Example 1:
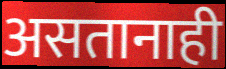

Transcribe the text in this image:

असतानाही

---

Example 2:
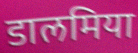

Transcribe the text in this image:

डालमिया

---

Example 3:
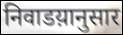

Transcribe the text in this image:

निवाडय़ानुसार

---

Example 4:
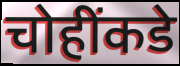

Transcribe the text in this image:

चोहींकडे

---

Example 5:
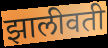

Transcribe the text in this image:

झालीवती